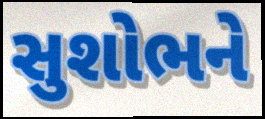
સુશોભને